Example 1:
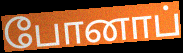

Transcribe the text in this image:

போனாப்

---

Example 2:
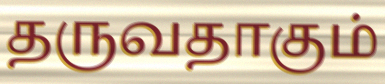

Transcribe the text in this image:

தருவதாகும்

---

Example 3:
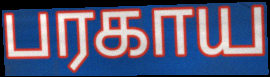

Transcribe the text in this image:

பரகாய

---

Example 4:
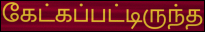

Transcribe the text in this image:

கேட்கப்பட்டிருந்த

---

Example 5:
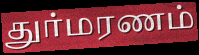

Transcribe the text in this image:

துர்மரணம்